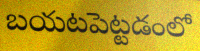
బయటపెట్టడంలో